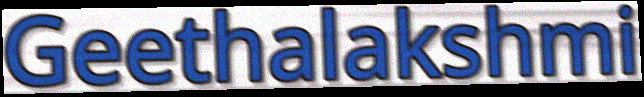
Geethalakshmi